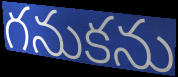
గనుకను